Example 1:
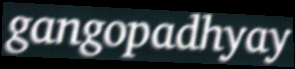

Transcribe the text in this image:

gangopadhyay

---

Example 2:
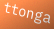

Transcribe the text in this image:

ttonga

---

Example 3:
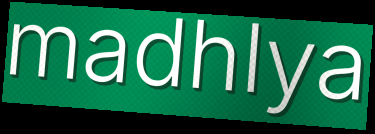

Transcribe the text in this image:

madhlya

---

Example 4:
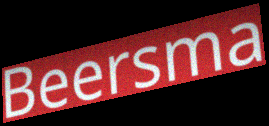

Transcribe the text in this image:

Beersma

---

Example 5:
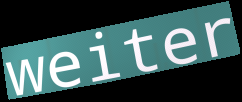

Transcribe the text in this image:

weiter